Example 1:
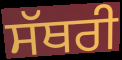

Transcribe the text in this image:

ਸੱਥਰੀ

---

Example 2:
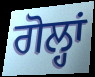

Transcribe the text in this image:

ਗੋਲ੍ਹਾਂ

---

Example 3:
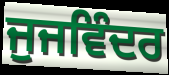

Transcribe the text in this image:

ਜੁਜਵਿੰਦਰ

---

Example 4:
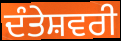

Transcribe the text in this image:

ਦੰਤੇਸ਼ਵਰੀ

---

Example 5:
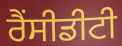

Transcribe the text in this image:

ਰੈਂਸੀਡੀਟੀ